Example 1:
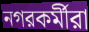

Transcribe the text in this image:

নগরকর্মীরা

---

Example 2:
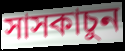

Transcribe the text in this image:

সাসকাচুন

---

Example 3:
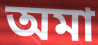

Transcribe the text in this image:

অমা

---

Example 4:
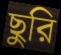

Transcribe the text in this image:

ছুরি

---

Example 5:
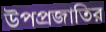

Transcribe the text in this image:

উপপ্রজাতির